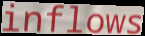
inflows